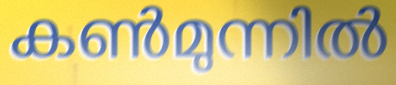
കൺമുന്നിൽ